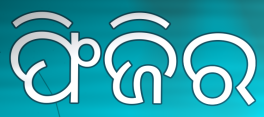
ଫିଜିର